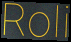
Roli